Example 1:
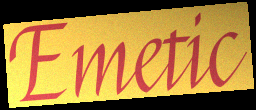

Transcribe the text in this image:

Emetic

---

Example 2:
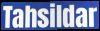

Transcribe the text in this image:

Tahsildar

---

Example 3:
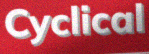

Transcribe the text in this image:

Cyclical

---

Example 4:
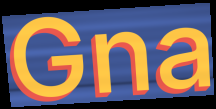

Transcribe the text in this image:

Gna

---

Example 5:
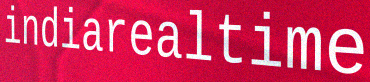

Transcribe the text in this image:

indiarealtime